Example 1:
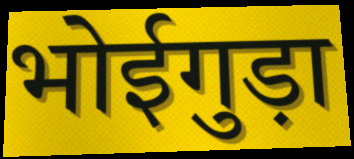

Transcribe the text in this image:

भोईगुड़ा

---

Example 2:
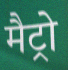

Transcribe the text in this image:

मैट्रो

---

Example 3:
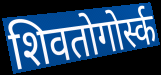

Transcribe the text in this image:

शिवतोगोर्स्क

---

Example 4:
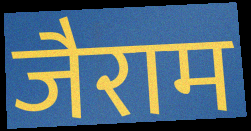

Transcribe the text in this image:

जैराम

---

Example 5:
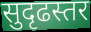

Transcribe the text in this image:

सुदृढस्तर